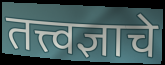
तत्त्वज्ञाचे